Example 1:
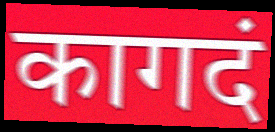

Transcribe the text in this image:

कागदं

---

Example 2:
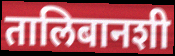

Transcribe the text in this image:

तालिबानशी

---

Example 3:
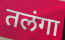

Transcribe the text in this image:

तलंगा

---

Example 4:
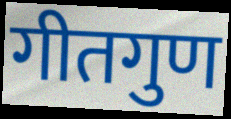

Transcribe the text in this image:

गीतगुण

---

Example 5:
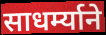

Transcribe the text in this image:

साधर्म्याने